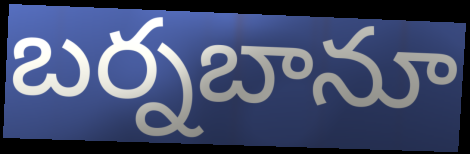
బర్నబానూ